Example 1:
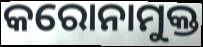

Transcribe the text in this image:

କରୋନାମୁକ୍ତ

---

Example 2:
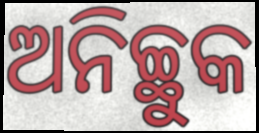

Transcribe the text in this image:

ଅନିଚ୍ଛୁକ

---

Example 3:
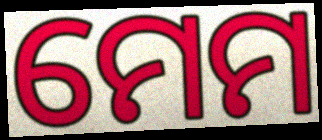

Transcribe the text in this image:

ମେମ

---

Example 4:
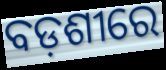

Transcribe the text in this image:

ବଡ଼ଶୀରେ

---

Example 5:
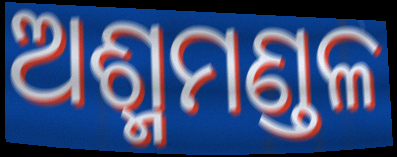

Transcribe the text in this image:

ଅଶ୍ମମଣ୍ଡଳ